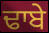
ਢਾਬੇ